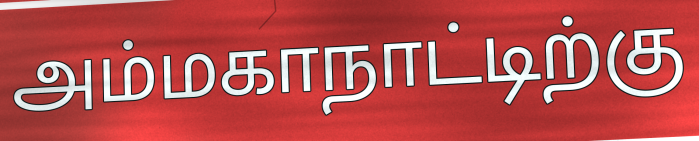
அம்மகாநாட்டிற்கு